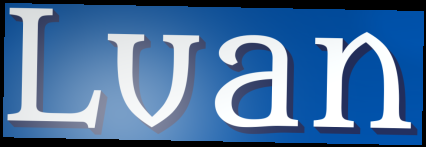
Luan